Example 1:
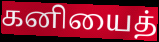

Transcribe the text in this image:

கனியைத்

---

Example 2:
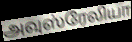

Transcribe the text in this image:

அவுஸ்ரேலியா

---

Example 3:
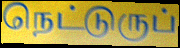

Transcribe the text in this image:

நெட்டுருப்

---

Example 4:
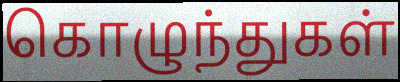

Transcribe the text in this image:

கொழுந்துகள்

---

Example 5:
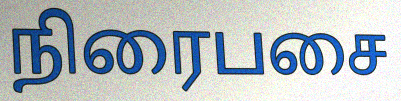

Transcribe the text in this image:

நிரைபசை